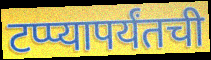
टप्प्यापर्यंतची